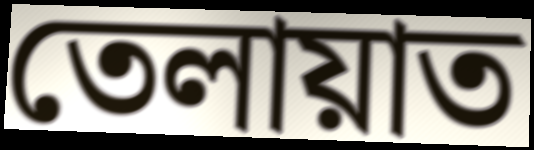
তেলায়াত